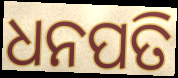
ଧନପତି